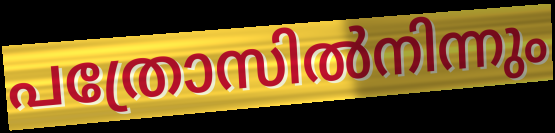
പത്രോസിൽനിന്നും